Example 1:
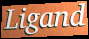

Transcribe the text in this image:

Ligand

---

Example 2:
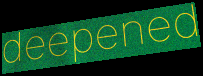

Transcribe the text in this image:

deepened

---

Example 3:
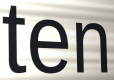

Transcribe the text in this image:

ten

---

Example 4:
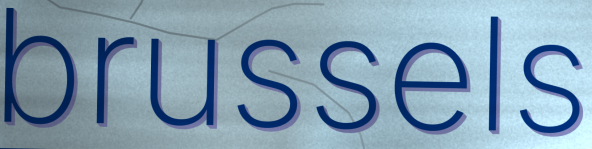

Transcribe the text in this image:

brussels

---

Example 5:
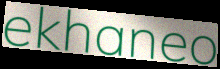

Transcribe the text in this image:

ekhaneo